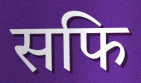
सफि